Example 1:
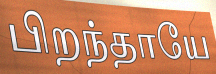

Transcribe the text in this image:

பிறந்தாயே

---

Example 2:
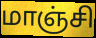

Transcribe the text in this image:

மாஞ்சி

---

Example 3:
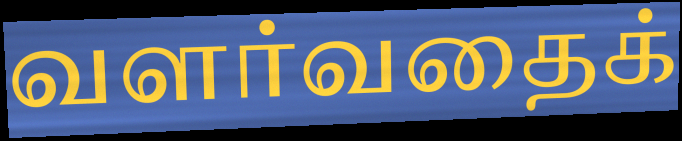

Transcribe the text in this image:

வளர்வதைக்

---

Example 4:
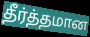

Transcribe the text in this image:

தீர்த்தமான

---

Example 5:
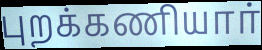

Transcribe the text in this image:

புறக்கணியார்